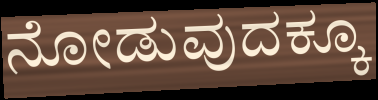
ನೋಡುವುದಕ್ಕೂ